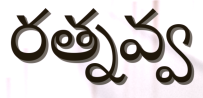
రత్నవ్వ